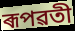
ৰূপৱতী